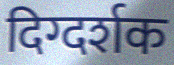
दिग्दर्शक